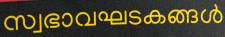
സ്വഭാവഘടകങ്ങൾ